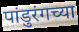
पांडुरंगच्या